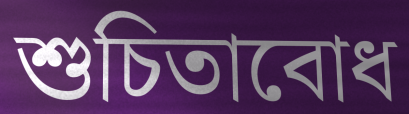
শুচিতাবোধ